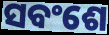
ସବଂଶେ